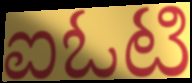
ಐಓಟಿ